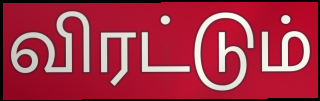
விரட்டும்